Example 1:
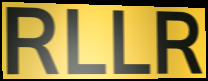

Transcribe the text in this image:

RLLR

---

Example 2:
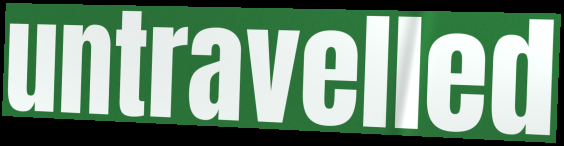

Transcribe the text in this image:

untravelled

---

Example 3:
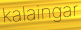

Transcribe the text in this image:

kalaingar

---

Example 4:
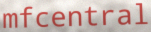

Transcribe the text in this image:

mfcentral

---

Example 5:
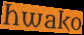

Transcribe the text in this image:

hwako